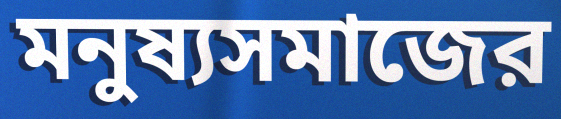
মনুষ্যসমাজের